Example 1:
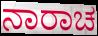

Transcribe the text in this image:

ನಾರಾಚ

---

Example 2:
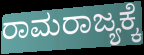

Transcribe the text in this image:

ರಾಮರಾಜ್ಯಕ್ಕೆ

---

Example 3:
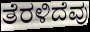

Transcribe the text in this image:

ತೆರಳಿದೆವು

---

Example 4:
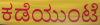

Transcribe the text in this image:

ಕಡೆಯುಂಟೆ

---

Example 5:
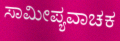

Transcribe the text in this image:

ಸಾಮೀಪ್ಯವಾಚಕ